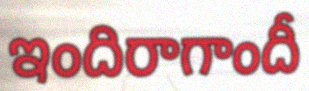
ఇందిరాగాందీ